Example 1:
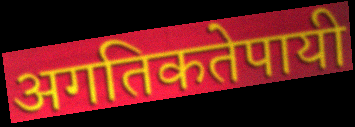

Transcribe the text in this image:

अगतिकतेपायी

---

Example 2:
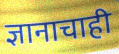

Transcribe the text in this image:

ज्ञानाचाही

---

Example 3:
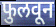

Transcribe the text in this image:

फुलवून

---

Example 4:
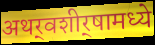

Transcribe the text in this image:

अथर्वशीर्षामध्ये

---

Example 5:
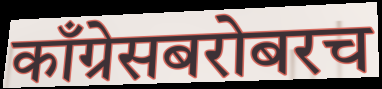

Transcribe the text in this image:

काँग्रेसबरोबरच